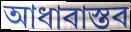
আধাবাস্তব